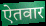
ऐतवार